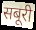
सबूरी